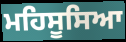
ਮਹਿਸੂਸਿਆ